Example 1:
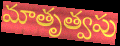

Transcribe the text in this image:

మాతృత్వపు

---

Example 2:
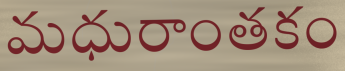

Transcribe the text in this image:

మధురాంతకం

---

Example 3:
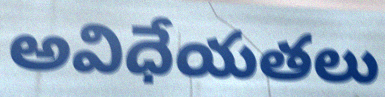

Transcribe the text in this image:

అవిధేయతలు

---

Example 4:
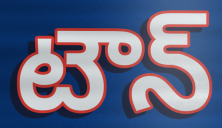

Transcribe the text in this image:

టౌన్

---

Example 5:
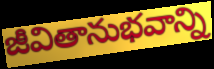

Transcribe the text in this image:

జీవితానుభవాన్ని